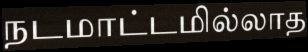
நடமாட்டமில்லாத